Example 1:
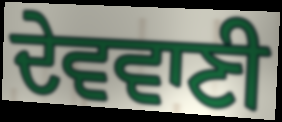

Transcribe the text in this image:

ਦੇਵਵਾਣੀ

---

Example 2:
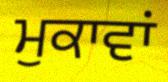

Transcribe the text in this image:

ਮੁਕਾਵਾਂ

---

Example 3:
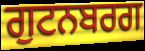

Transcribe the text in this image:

ਗੁਟਨਬਰਗ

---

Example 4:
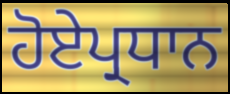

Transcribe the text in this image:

ਹੋਏਪ੍ਰਧਾਨ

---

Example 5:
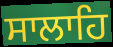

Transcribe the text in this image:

ਸਾਲਾਹਿ